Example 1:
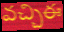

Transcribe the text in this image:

వచ్చిఈ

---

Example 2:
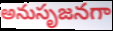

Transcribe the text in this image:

అనుసృజనగా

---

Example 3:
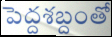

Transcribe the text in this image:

పెద్దశబ్దంతో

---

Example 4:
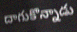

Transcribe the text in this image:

దాగుకొన్నాడు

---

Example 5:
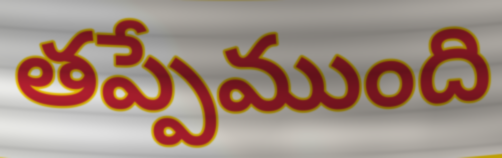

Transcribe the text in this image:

తప్పేముంది